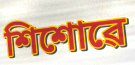
শিশোৱে